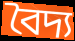
বৈদ্য